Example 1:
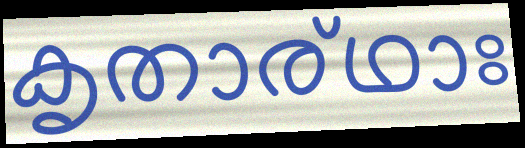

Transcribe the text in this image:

കൃതാര്ഥാഃ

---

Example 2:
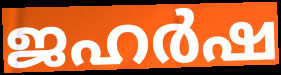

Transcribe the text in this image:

ജഹർഷ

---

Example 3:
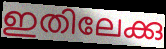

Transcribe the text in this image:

ഇതിലേക്കു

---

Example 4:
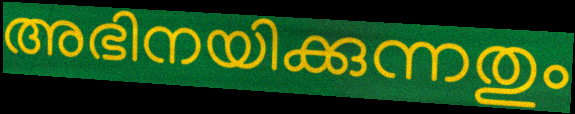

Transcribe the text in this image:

അഭിനയിക്കുന്നതും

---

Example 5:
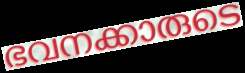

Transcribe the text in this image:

ഭവനക്കാരുടെ